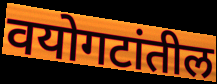
वयोगटांतील